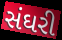
સંઘરી